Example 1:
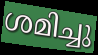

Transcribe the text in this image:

ശമിച്ചു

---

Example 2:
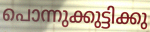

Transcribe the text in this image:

പൊന്നുക്കുട്ടിക്കു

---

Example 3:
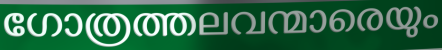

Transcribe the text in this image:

ഗോത്രത്തലവന്മാരെയും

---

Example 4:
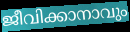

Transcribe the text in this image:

ജീവിക്കാനാവും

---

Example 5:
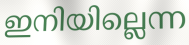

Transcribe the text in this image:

ഇനിയില്ലെന്ന